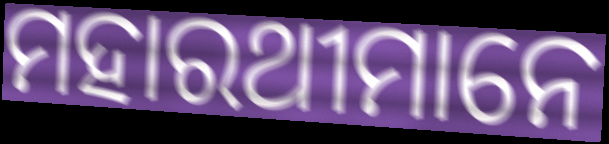
ମହାରଥୀମାନେ